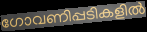
ഗോവണിപ്പടികളിൽ